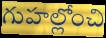
గుహల్లోంచి